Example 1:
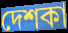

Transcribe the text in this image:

দেশকা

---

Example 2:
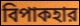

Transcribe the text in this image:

বিপাকহার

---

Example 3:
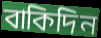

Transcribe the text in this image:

বাকিদিন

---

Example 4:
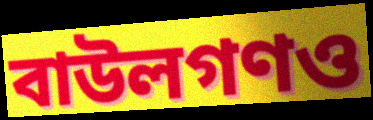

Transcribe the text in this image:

বাউলগণও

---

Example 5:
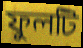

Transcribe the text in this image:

ফুলটি